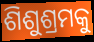
ଶିଶୁଶ୍ରମକୁ